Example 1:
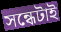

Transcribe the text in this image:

সন্ধেটাই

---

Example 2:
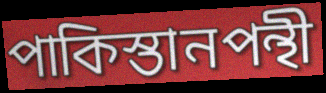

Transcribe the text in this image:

পাকিস্তানপন্থী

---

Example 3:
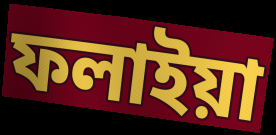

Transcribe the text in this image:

ফলাইয়া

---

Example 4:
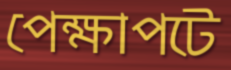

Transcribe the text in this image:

পেক্ষাপটে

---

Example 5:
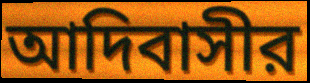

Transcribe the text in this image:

আদিবাসীর